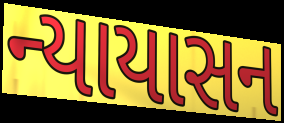
ન્યાયાસન